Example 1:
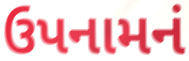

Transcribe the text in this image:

ઉપનામનં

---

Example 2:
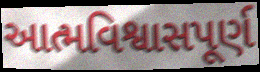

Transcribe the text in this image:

આત્મવિશ્વાસપૂર્ણ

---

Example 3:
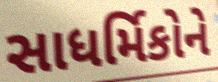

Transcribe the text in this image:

સાધર્મિકોને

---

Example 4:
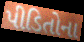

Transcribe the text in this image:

પીડિતોના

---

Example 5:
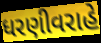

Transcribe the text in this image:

ધરણીવરાહે